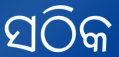
ସଠିକ